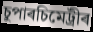
চুপাৰচিমেট্ৰীৰ